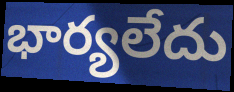
భార్యలేదు